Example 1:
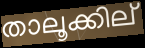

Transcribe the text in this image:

താലൂക്കില്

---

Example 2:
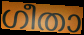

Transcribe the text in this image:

ഗീതാ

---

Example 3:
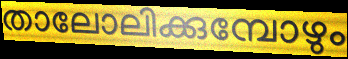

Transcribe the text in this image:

താലോലിക്കുമ്പോഴും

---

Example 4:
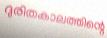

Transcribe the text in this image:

ദുരിതകാലത്തിന്റെ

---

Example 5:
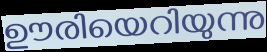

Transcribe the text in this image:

ഊരിയെറിയുന്നു